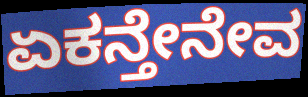
ಏಕನ್ತೇನೇವ